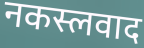
नकस्लवाद